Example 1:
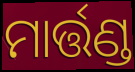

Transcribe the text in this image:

ମାର୍ତ୍ତଣ୍ଡ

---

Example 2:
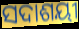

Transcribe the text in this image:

ସଦାଶୟୀ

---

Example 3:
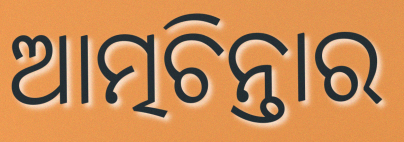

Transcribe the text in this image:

ଆତ୍ମଚିନ୍ତାର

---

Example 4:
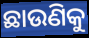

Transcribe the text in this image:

ଛାଉଣିକୁ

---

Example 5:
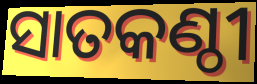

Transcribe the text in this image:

ସାତକଣ୍ଠୀ